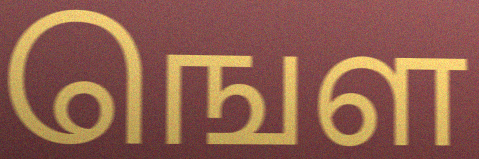
ஙௌ